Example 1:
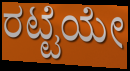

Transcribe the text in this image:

ರಟ್ಟೆಯೇ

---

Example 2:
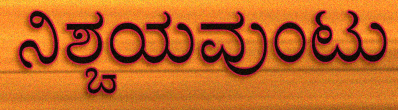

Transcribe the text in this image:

ನಿಶ್ಚಯವುಂಟು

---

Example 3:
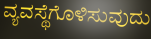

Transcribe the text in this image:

ವ್ಯವಸ್ಥೆಗೊಳಿಸುವುದು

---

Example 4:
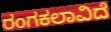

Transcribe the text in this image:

ರಂಗಕಲಾವಿದೆ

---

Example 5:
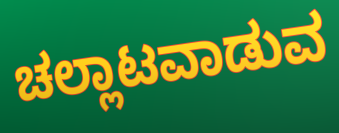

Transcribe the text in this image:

ಚಲ್ಲಾಟವಾಡುವ